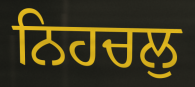
ਨਿਹਚਲੁ